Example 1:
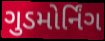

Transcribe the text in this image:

ગુડમોર્નિંગ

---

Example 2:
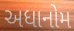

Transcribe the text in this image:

અધાનોમ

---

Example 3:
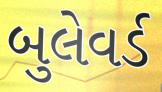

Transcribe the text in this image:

બુલેવર્ડ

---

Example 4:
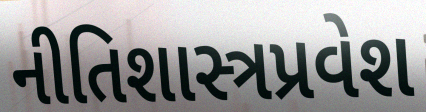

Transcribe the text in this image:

નીતિશાસ્ત્રપ્રવેશ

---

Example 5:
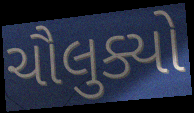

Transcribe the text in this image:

ચૌલુક્યો